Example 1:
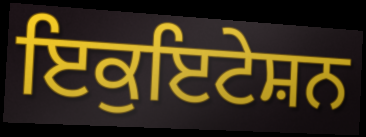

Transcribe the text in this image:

ਇਕੁਇਟੇਸ਼ਨ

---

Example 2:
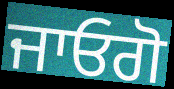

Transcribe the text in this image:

ਜਾਓਗੋ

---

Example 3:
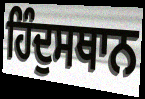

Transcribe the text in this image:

ਹਿੰਦੁਸਥਾਨ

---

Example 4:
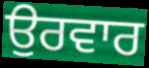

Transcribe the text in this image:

ਉਰਵਾਰ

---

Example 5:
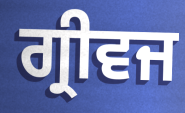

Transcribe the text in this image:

ਗ੍ਰੀਵਜ